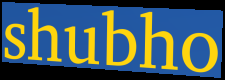
shubho